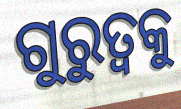
ଗୁରୁତ୍ବକୁ